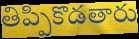
తిప్పికొడతారు